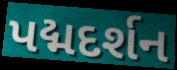
પદ્મદર્શન